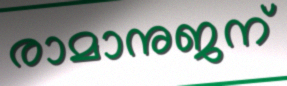
രാമാനുജന്